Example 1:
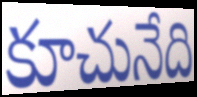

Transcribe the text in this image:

కూచునేది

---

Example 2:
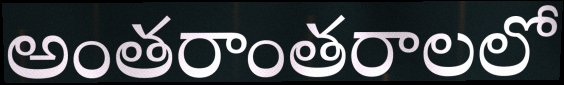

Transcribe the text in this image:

అంతరాంతరాలలో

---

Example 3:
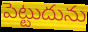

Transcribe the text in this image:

పెట్టుదును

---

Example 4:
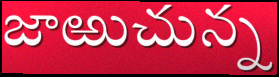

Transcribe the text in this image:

జాఱుచున్న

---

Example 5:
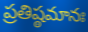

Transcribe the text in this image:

ప్రతిష్ఠమానః